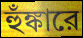
হুঁঙ্কারে